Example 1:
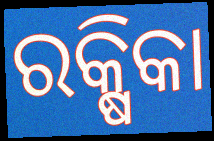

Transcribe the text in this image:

ରକ୍ଷିକା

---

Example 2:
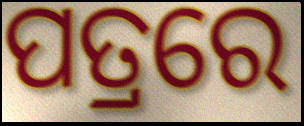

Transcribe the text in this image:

ପତ୍ରରେ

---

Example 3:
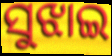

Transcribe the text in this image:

ସୁଝାଇ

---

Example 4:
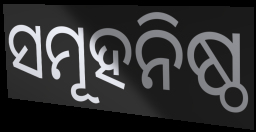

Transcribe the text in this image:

ସମୂହନିଷ୍ଠ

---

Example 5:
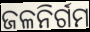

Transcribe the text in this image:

ଜଳନିର୍ଗମ